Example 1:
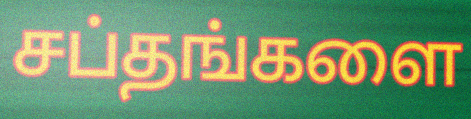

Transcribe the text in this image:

சப்தங்களை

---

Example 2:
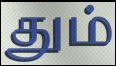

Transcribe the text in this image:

தும்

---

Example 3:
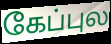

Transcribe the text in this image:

கேப்புல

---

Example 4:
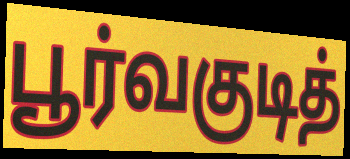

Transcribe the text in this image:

பூர்வகுடித்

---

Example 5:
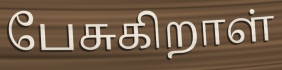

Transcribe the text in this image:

பேசுகிறாள்